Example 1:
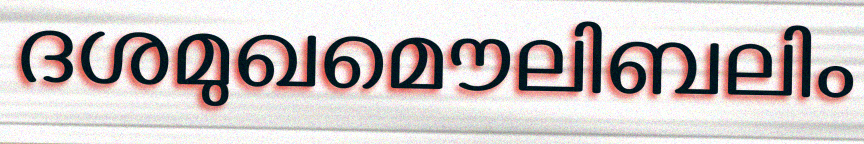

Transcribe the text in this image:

ദശമുഖമൌലിബലിം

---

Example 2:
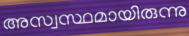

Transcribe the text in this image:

അസ്വസ്ഥമായിരുന്നു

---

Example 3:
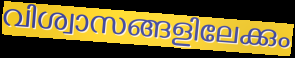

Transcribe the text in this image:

വിശ്വാസങ്ങളിലേക്കും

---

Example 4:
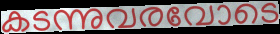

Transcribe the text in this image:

കടന്നുവരവോടെ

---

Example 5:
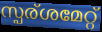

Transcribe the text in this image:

സ്പര്ശമേറ്റ്